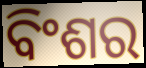
ବିଂଶର